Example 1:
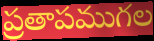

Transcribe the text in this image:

ప్రతాపముగల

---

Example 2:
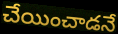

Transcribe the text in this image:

చేయించాడనే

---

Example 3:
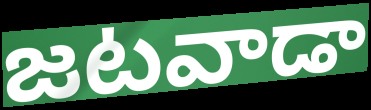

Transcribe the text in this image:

జటవాడా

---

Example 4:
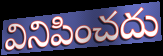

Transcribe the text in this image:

వినిపించదు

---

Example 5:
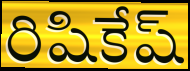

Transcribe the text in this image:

రిషికేష్